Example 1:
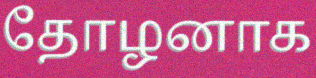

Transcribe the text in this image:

தோழனாக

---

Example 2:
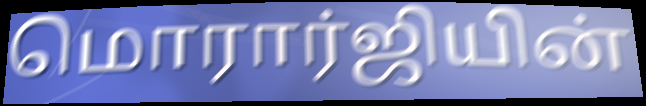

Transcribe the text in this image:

மொரார்ஜியின்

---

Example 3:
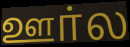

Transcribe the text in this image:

ஊர்ல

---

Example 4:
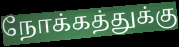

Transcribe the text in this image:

நோக்கத்துக்கு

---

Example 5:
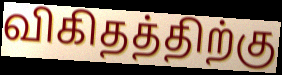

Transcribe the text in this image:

விகிதத்திற்கு